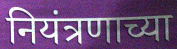
नियंत्रणाच्या